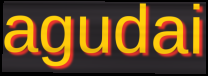
agudai